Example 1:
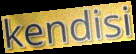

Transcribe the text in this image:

kendisi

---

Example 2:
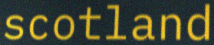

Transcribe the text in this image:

scotland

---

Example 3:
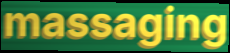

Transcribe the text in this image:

massaging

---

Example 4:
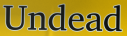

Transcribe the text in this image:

Undead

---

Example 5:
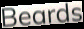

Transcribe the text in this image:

Beards